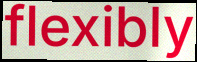
flexibly